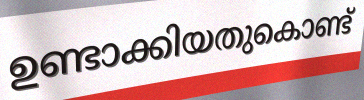
ഉണ്ടാക്കിയതുകൊണ്ട്